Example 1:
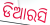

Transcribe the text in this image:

ଡିଆରସି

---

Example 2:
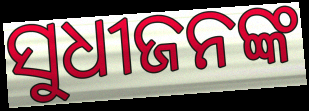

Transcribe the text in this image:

ସୁଧୀଜନଙ୍କ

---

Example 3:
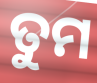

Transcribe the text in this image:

ତୁମ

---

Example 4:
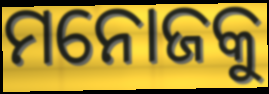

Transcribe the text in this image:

ମନୋଜକୁ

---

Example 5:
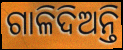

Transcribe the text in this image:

ଗାଳିଦିଅନ୍ତି